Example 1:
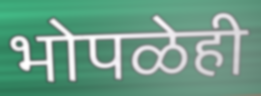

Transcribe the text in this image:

भोपळेही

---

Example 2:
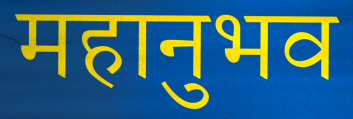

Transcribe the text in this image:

महानुभव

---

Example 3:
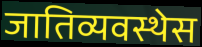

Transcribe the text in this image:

जातिव्यवस्थेस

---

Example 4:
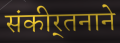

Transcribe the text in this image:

संकीर्तनाने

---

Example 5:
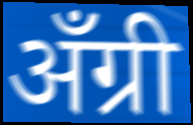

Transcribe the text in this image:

अँग्री